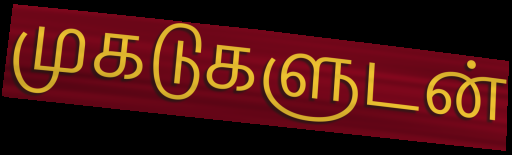
முகடுகளுடன்